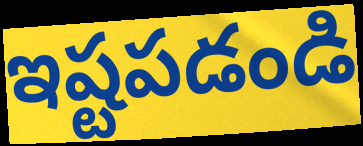
ఇష్టపడండి